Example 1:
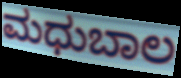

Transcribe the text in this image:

ಮಧುಬಾಲ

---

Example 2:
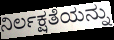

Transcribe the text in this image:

ನಿರ್ಲಕ್ಷತೆಯನ್ನು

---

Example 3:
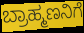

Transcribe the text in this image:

ಬ್ರಾಹ್ಮಣನಿಗೆ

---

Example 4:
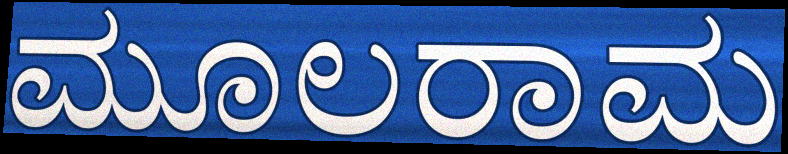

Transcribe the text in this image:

ಮೂಲರಾಮ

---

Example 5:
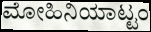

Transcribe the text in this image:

ಮೋಹಿನಿಯಾಟ್ಟಂ